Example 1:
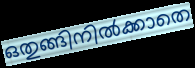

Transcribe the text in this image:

ഒതുങ്ങിനിൽക്കാതെ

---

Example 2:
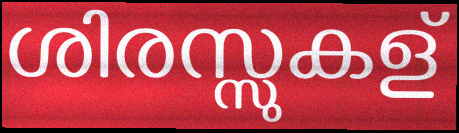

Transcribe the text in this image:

ശിരസ്സുകള്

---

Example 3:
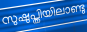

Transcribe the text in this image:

സുഷുപ്തിയിലാണ്ടു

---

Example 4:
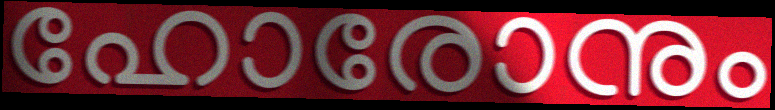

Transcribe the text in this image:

ഹോരോനും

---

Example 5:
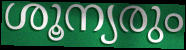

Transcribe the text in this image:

ശൂന്യരും